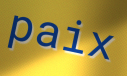
paix